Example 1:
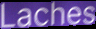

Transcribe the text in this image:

Laches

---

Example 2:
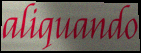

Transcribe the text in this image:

aliquando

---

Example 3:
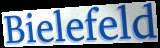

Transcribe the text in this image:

Bielefeld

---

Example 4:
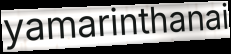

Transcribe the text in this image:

yamarinthanai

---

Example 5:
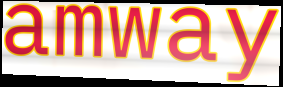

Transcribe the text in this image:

amway